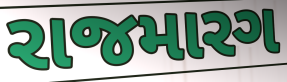
રાજમારગ